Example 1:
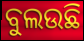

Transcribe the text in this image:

ବୁଲଉଛି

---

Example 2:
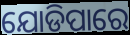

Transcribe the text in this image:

ଯୋଡିପାରେ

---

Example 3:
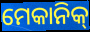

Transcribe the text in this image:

ମେକାନିକ୍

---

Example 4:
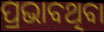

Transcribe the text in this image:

ପ୍ରଭାବଥିବା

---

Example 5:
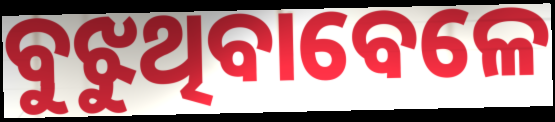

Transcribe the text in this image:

ବୁଝୁଥିବାବେଳେ